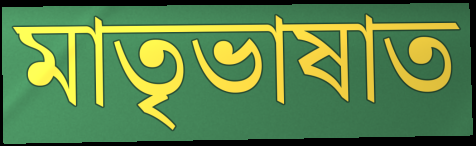
মাতৃভাষাত